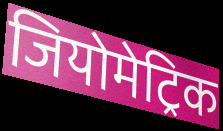
जियोमेट्रिक